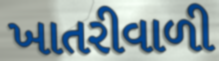
ખાતરીવાળી